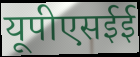
यूपीएसईई